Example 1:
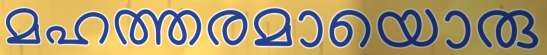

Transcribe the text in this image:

മഹത്തരമായൊരു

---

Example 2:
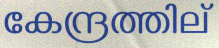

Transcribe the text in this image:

കേന്ദ്രത്തില്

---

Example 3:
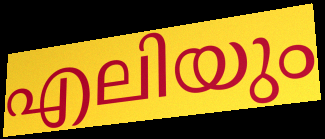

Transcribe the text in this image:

എലിയും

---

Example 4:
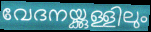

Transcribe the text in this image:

വേദനയ്ക്കുള്ളിലും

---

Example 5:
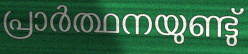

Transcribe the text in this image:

പ്രാർത്ഥനയുണ്ടു്